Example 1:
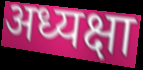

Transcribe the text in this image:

अध्यक्षा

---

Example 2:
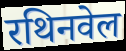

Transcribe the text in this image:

रथिनवेल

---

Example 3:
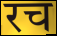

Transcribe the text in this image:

रच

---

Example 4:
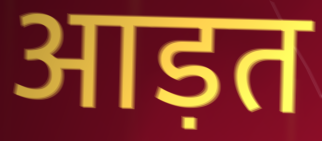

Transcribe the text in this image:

आड़त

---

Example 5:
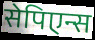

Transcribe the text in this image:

सेपिएन्स